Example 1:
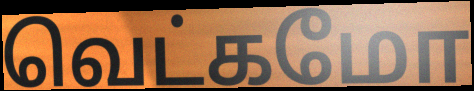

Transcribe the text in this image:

வெட்கமோ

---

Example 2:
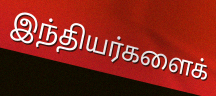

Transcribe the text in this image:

இந்தியர்களைக்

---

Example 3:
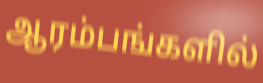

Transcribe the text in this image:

ஆரம்பங்களில்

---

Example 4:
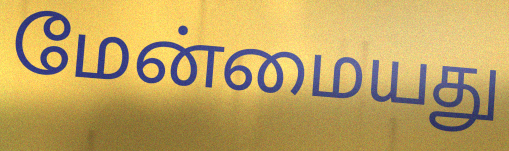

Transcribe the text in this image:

மேன்மையது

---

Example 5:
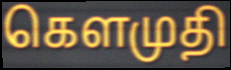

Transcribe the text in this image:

கௌமுதி